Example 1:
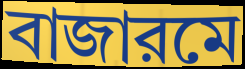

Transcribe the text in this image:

বাজারমে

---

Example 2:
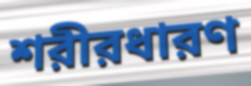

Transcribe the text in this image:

শরীরধারণ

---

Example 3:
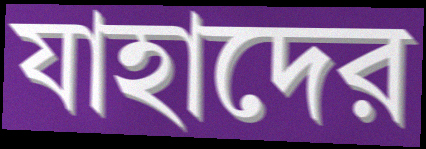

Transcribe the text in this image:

যাহাদের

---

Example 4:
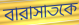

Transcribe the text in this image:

বারাসাতকে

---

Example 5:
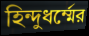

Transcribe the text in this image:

হিন্দুধর্ম্মের